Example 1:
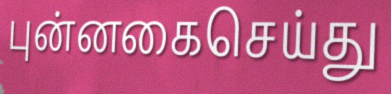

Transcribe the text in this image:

புன்னகைசெய்து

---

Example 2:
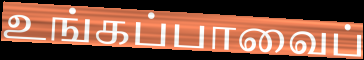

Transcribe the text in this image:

உங்கப்பாவைப்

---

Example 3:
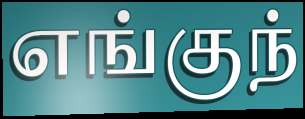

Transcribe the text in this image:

எங்குந்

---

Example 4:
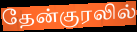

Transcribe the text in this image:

தேன்குரலில்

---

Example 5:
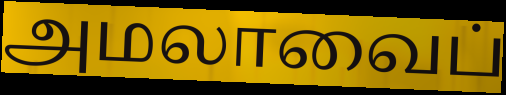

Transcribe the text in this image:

அமலாவைப்